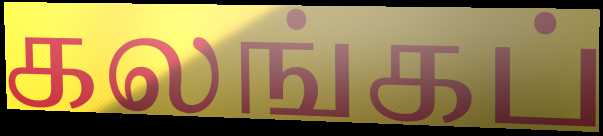
கலங்கப்